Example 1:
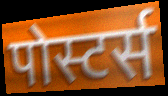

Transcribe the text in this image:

पोस्टर्स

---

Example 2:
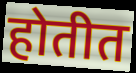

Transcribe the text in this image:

होतीत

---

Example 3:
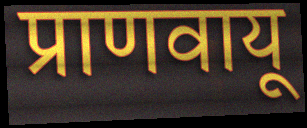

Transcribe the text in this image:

प्राणवायू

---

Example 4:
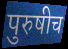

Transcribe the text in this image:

पुरुषीच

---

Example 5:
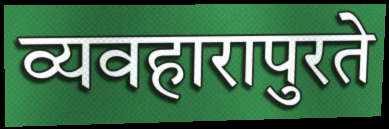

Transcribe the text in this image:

व्यवहारापुरते